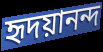
হৃদয়ানন্দ